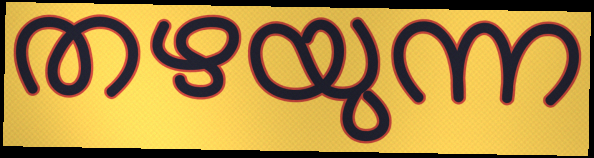
തഴയുന്ന